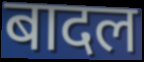
बादल